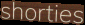
shorties